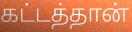
கட்டத்தான்